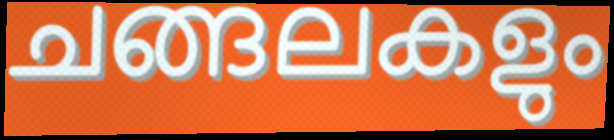
ചങ്ങലകളും